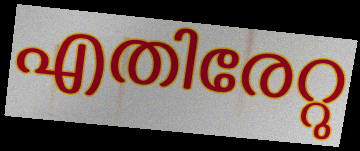
എതിരേറ്റു